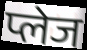
प्‍लेज